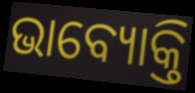
ଭାବ୍ୟୋକ୍ତି